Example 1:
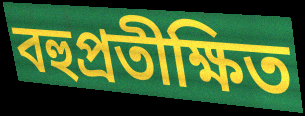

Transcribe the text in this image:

বহুপ্রতীক্ষিত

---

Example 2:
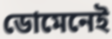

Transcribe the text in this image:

ডোমেনেই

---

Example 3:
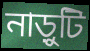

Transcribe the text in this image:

নাড়ুটি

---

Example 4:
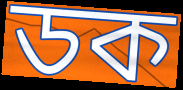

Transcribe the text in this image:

ডক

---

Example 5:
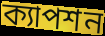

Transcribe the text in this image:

ক্যাপশন